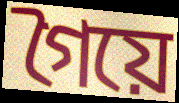
গৈয়ে